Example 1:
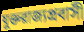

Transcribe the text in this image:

যুক্তরাজ্যপ্রবাসী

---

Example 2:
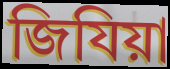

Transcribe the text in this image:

জিযিয়া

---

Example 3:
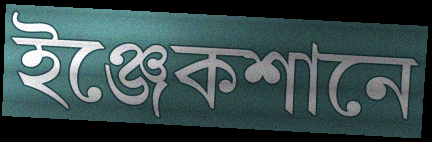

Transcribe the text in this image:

ইঞ্জেকশানে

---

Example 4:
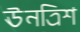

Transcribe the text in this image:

ঊনত্রিশ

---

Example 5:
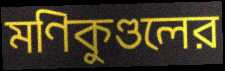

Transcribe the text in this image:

মণিকুণ্ডলের